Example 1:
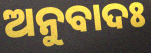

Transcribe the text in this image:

ଅନୁବାଦଃ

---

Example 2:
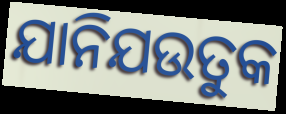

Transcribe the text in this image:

ଯାନିଯଉତୁକ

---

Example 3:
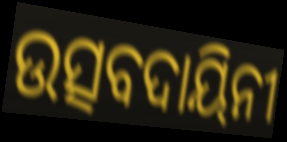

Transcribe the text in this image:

ଉତ୍ସବଦାୟିନୀ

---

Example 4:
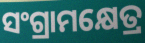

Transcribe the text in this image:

ସଂଗ୍ରାମକ୍ଷେତ୍ର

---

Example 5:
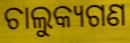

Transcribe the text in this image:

ଚାଲୁକ୍ୟଗଣ